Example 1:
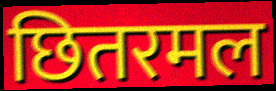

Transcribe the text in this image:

छितरमल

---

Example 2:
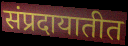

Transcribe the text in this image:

संप्रदायातीत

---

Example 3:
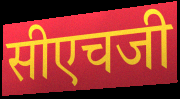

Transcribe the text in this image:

सीएचजी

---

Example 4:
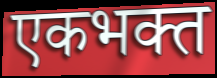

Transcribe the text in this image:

एकभक्त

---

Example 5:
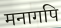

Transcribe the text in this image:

मनागपि